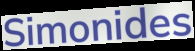
Simonides